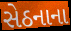
સેઠનાના